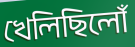
খেলিছিলোঁ